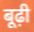
बूढ़ी